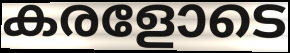
കരളോടെ